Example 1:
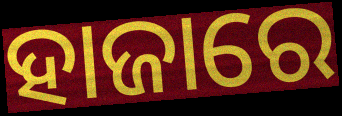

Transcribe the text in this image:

ହାଜାରେ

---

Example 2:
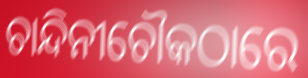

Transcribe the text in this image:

ଚାନ୍ଦିନୀଚୌକଠାରେ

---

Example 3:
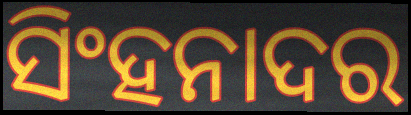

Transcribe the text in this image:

ସିଂହନାଦର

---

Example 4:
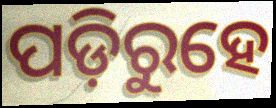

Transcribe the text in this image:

ପଡ଼ିରୁହେ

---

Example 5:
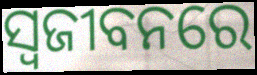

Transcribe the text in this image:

ସ୍ଵଜୀବନରେ